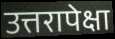
उत्तरापेक्षा